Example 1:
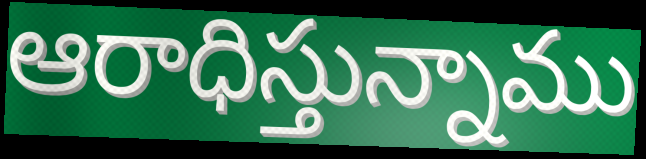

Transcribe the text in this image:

ఆరాధిస్తున్నాము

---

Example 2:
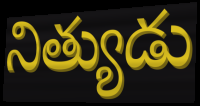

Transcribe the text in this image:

నిత్యుడు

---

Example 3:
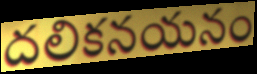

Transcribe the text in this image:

దలికనయనం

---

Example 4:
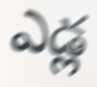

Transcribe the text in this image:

ఎడ్ల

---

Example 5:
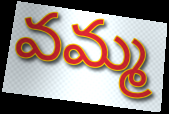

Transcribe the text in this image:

వమ్మ